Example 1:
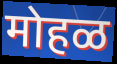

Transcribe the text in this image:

मोहळ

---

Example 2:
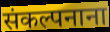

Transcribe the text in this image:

संकल्पनाना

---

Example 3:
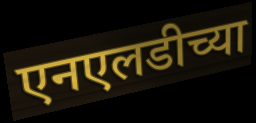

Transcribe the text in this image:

एनएलडीच्या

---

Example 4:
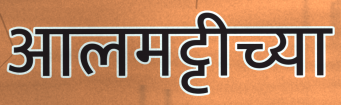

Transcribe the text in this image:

आलमट्टीच्या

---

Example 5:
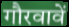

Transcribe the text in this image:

गौरवावें